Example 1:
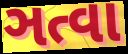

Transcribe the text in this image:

ઞત્વા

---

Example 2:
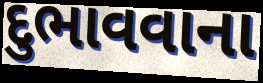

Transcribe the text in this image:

દુભાવવાના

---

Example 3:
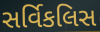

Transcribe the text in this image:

સર્વિકલિસ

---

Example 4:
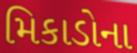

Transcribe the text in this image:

મિકાડોના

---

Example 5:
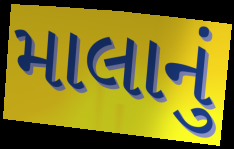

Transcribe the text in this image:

માલાનું